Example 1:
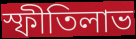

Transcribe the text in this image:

স্ফীতিলাভ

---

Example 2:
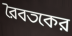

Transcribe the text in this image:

রৈবতকের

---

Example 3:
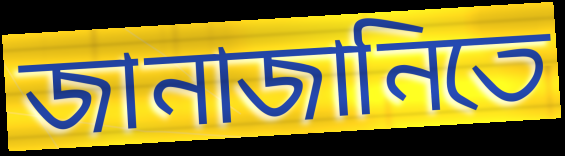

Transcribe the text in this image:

জানাজানিতে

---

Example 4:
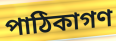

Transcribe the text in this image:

পাঠিকাগণ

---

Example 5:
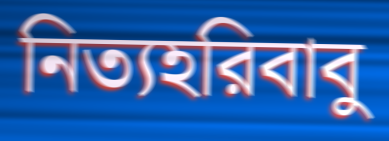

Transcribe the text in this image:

নিত্যহরিবাবু